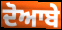
ਦੋਆਬੇ